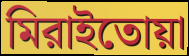
মিরাইতোয়া